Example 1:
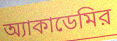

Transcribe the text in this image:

অ্যাকাডেমির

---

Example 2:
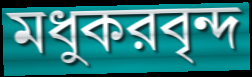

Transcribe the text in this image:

মধুকরবৃন্দ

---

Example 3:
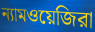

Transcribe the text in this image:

ন্যামওয়েজিরা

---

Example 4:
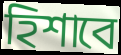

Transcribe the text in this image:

হিশাবে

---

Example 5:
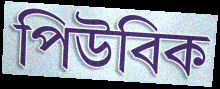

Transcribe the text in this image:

পিউবিক